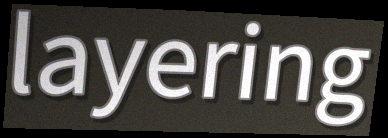
layering